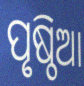
ପୃଷ୍ଠିଆ